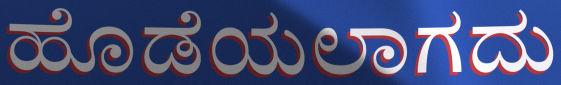
ಹೊಡೆಯಲಾಗದು